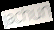
jachun